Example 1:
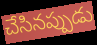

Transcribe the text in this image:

చేసినప్పుడు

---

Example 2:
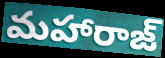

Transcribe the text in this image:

మహారాజ్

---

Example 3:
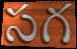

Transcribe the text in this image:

సగ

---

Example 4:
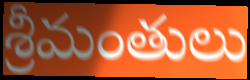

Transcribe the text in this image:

శ్రీమంతులు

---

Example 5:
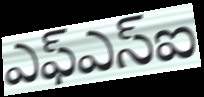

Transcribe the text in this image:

ఎఫ్ఎస్ఐ